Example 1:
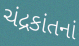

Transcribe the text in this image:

ચંદ્રકાંતનાં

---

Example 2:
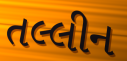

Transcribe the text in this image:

તલ્લીન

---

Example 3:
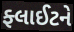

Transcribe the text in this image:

ફ્લાઈટને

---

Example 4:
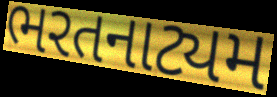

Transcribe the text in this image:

ભરતનાટ્યમ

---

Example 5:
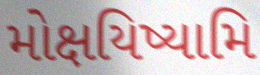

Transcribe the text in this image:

મોક્ષયિષ્યામિ